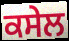
ਕਸੇਲ